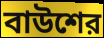
বাউশের